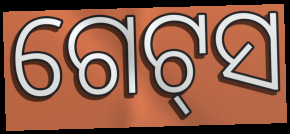
ଗେଟ୍‌ସ